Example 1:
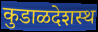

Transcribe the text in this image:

कुडाळदेशस्थ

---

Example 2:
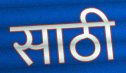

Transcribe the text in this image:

साठी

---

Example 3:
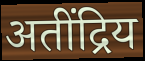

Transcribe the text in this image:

अतींद्रिय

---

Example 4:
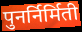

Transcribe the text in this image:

पुनर्निर्मिती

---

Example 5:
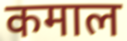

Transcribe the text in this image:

कमाल